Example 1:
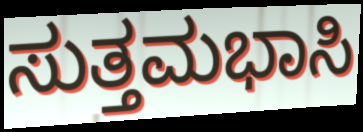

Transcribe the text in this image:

ಸುತ್ತಮಭಾಸಿ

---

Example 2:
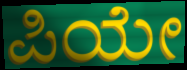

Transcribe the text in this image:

ಪಿಯೇ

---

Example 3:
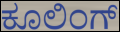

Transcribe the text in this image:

ಕೂಲಿಂಗ್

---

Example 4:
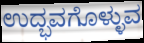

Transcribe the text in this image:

ಉದ್ಭವಗೊಳ್ಳುವ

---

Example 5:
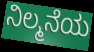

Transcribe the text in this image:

ನಿಲ್ಮನೆಯ